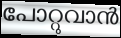
പോറ്റുവാൻ